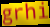
grhi